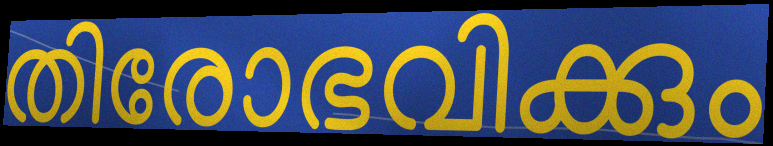
തിരോഭവിക്കും